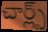
చార్ల్స్